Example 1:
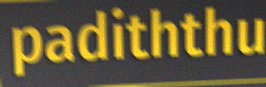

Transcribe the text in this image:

padiththu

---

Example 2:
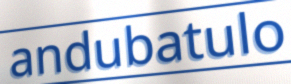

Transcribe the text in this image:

andubatulo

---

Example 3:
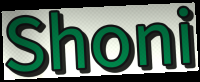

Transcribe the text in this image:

Shoni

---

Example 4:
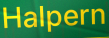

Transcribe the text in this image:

Halpern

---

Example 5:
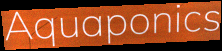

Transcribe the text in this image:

Aquaponics